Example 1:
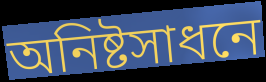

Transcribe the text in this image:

অনিষ্টসাধনে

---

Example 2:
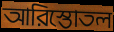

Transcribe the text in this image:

আরিস্তোতল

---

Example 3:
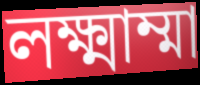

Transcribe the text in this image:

লক্ষ্মাম্মা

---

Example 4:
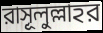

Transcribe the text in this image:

রাসূলুল্লাহর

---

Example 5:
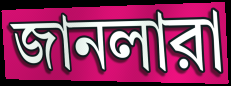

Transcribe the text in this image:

জানলারা